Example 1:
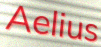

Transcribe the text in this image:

Aelius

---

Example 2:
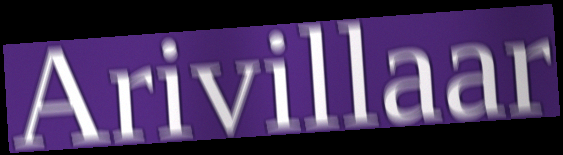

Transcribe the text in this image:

Arivillaar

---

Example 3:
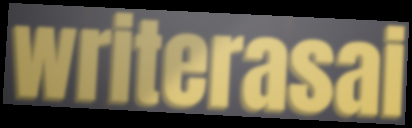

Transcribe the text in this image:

writerasai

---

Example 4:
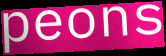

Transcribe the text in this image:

peons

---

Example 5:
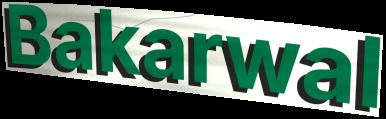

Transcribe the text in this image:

Bakarwal